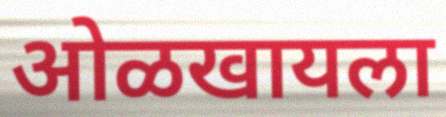
ओळखायला